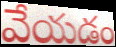
వేయడం